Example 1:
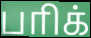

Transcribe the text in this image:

பரிக்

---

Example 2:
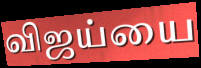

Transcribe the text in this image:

விஜய்யை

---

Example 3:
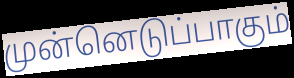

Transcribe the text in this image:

முன்னெடுப்பாகும்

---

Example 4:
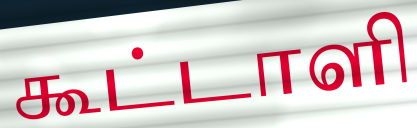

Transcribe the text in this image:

கூட்டாளி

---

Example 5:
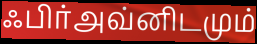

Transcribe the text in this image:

ஃபிர்அவ்னிடமும்